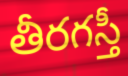
తీరగస్తీ